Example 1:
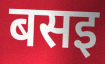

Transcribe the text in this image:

बसइ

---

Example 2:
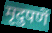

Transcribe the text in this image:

मृदुपणें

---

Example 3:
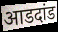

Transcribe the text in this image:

आडदांड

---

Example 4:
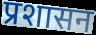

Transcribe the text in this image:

प्रशासन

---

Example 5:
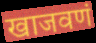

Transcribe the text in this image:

खाजवणं